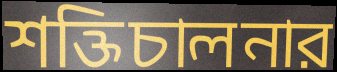
শক্তিচালনার